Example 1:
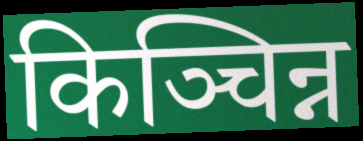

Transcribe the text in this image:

किञ्चिन्न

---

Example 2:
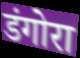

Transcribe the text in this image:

डंगोरा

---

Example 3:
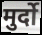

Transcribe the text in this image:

मुर्दो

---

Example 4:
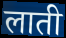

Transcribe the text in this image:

लाती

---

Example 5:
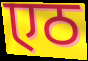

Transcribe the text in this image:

एठ